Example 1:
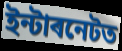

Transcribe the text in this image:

ইন্টাৰনেটত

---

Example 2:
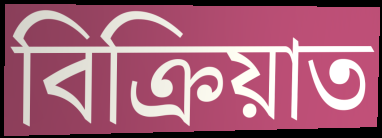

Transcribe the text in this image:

বিক্ৰিয়াত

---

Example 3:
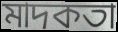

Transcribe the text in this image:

মাদকতা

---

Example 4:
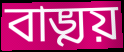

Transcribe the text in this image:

বাঙ্ময়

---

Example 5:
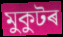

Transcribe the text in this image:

মুকুটৰ